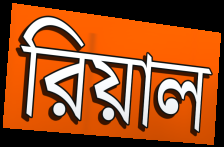
রিয়াল